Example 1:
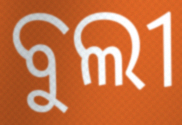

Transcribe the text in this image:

ବୁଲୀ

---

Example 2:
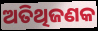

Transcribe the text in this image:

ଅତିଥିଜଣକ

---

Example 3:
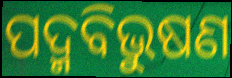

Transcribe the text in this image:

ପଦ୍ମବିଭୁଷଣ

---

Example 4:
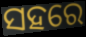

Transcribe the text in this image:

ସହରେ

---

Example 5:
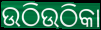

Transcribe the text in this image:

ଉଠିଉଠିକା